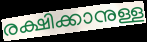
രക്ഷിക്കാനുള്ള